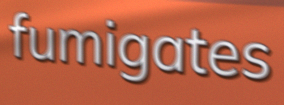
fumigates